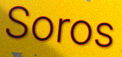
Soros